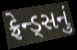
ફ્રેન્ડ્સનું